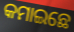
କମାଇଛେ